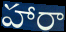
హారా